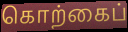
கொற்கைப்